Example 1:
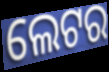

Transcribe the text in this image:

ଲେଟର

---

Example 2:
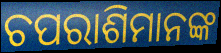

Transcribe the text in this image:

ଚପରାଶିମାନଙ୍କ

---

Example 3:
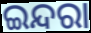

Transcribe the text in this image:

ଇନ୍ଦରା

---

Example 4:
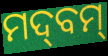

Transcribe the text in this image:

ମଦ୍‌ବମ୍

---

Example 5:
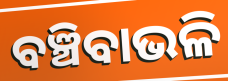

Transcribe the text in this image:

ବଞ୍ଚିବାଭଳି